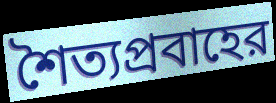
শৈত্যপ্রবাহের